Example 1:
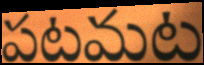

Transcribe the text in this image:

పటమట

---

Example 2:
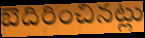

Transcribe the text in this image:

బెదిరించినట్లు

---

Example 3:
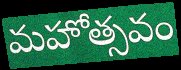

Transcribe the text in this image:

మహోత్సవం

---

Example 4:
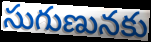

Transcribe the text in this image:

సుగుణునకు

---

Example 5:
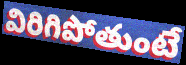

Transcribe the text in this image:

విరిగిపోతుంటే